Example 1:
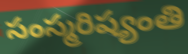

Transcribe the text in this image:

సంస్మరిష్యంతి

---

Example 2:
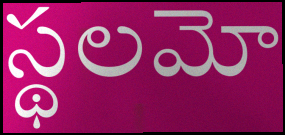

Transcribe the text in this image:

స్థలమో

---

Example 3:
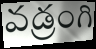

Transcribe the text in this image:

వడ్రంగి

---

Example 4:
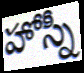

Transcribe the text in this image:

హోస్నీ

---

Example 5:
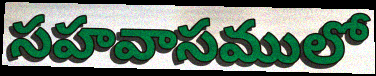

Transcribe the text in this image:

సహవాసములో